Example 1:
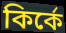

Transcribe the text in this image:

কির্কে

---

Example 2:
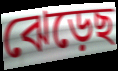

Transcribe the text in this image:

ঝেড়েছ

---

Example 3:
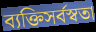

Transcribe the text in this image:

ব্যক্তিসর্বস্বতা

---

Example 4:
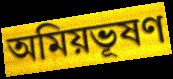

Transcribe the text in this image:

অমিয়ভূষণ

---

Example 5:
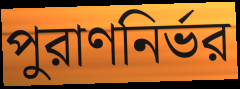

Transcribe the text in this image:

পুরাণনির্ভর